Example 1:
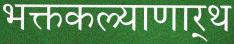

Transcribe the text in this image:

भक्तकल्याणार्थ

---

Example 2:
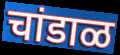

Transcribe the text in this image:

चांडाळ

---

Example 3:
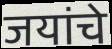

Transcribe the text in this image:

जयांचे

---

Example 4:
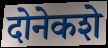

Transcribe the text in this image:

दोनेकशे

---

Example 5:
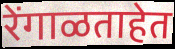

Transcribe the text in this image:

रेंगाळताहेत